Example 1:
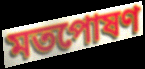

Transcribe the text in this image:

মতপোষণ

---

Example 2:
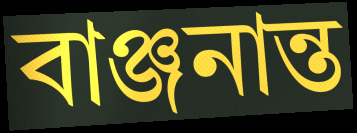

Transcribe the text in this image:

বাঞ্জনান্ত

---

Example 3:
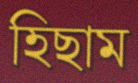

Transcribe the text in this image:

হিছাম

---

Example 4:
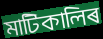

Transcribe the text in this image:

মাটিকালিৰ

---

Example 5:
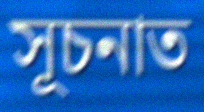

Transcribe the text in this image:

সূচনাত